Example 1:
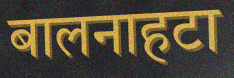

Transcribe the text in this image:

बालनाहटा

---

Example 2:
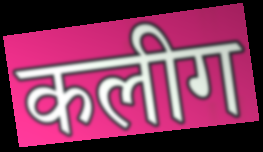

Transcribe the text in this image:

कलीग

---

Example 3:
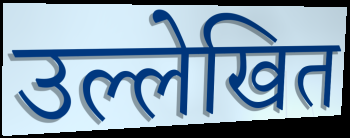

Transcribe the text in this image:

उल्लेखित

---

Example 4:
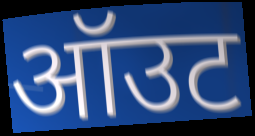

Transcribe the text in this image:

ऑउट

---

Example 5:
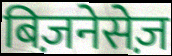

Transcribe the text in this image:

बिज़नेसेज़